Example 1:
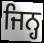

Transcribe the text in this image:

ਜਿਨ੍ਹ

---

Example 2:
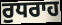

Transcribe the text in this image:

ਰੁਧਰਾਹ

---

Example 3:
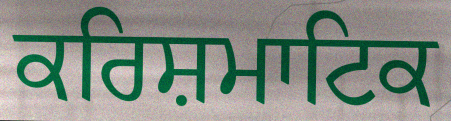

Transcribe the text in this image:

ਕਰਿਸ਼ਮਾਟਿਕ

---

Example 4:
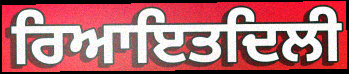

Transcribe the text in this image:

ਰਿਆਇਤਦਿਲੀ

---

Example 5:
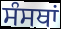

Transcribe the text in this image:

ਸੰਸਥਾਂ